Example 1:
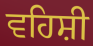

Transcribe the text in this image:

ਵਹਿਸ਼ੀ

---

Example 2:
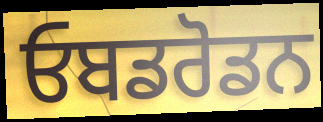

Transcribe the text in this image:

ਓਬਡਰੋਡਨ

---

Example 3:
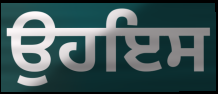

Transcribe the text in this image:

ਉਹਇਸ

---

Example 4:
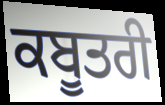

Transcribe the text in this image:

ਕਬੂਤਰੀ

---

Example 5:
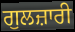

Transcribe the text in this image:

ਗੁਲਜ਼ਾਰੀ